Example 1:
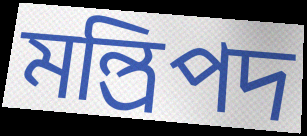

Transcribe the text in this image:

মন্ত্রিপদ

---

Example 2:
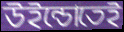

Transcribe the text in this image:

উইন্ডোতেই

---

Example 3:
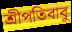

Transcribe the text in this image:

শ্রীপতিবাবু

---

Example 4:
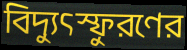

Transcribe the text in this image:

বিদ্যুৎস্ফুরণের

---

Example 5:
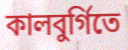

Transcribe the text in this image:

কালবুর্গিতে